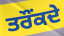
ਤਰੌਂਕਦੇ